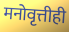
मनोवृत्तीही